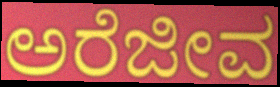
ಅರೆಜೀವ